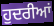
ਹੁਦਰੀਆਂ